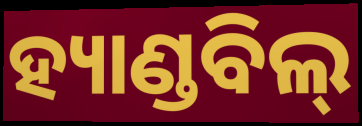
ହ୍ୟାଣ୍ଡବିଲ୍